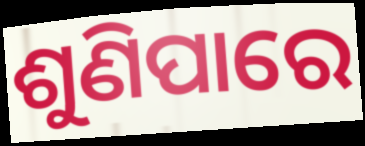
ଶୁଣିପାରେ